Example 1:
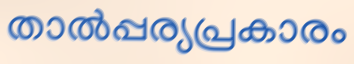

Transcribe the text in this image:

താൽപ്പര്യപ്രകാരം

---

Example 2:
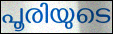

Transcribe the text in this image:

പൂരിയുടെ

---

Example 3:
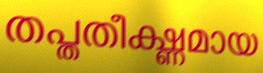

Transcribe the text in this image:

തപ്തതീക്ഷ്ണമായ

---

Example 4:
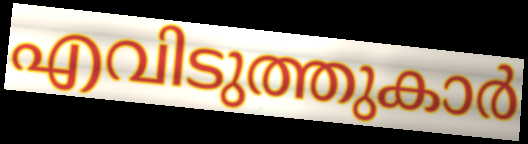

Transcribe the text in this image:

എവിടുത്തുകാർ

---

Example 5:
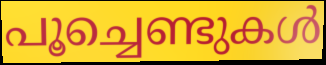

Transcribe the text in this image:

പൂച്ചെണ്ടുകൾ